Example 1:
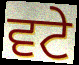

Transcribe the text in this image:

ਵਟੇ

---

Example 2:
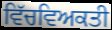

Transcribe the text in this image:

ਵਿੱਚਵਿਅਕਤੀ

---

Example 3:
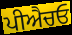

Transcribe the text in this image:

ਪੀਐਚਓ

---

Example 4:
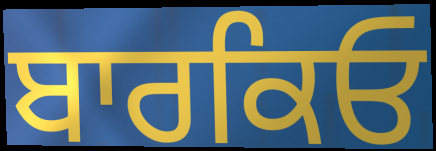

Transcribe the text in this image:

ਬਾਰਕਿਓ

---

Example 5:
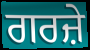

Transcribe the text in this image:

ਗਰਜ਼ੇ